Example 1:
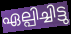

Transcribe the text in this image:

ഏല്പിച്ചിട്ടു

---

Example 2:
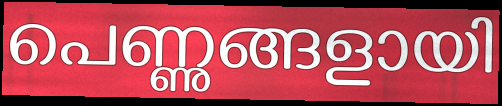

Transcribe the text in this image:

പെണ്ണുങ്ങളായി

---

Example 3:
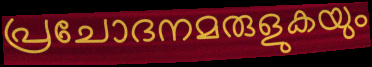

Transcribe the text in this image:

പ്രചോദനമരുളുകയും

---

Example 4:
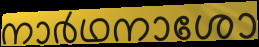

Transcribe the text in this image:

നാർഥനാശോ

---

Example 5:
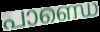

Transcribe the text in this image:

പാണ്ഡെ